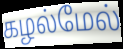
கழல்மேல்